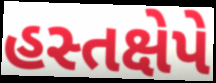
હસ્તક્ષેપે